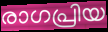
രാഗപ്രിയ